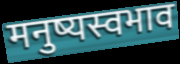
मनुष्यस्वभाव